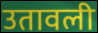
उतावली